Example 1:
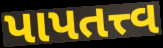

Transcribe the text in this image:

પાપતત્ત્વ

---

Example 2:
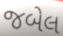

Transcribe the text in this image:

જબેલ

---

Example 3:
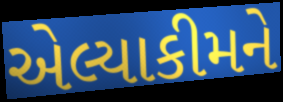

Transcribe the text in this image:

એલ્યાકીમને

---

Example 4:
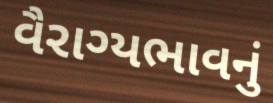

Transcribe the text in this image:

વૈરાગ્યભાવનું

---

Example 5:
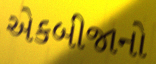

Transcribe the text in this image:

એકબીજાનો